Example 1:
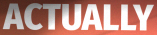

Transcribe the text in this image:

ACTUALLY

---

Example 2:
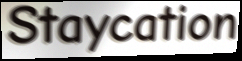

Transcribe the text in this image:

Staycation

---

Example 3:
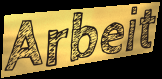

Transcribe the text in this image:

Arbeit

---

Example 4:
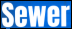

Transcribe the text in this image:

Sewer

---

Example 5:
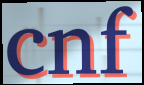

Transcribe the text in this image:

cnf